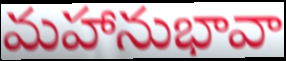
మహానుభావా